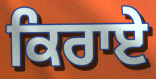
ਕਿਰਾਏ